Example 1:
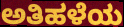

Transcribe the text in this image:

ಅತಿಹಳೆಯ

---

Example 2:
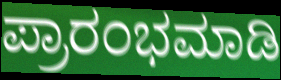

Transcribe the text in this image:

ಪ್ರಾರಂಭಮಾಡಿ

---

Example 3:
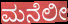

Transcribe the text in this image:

ಮನೆಲೀ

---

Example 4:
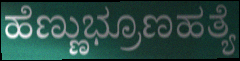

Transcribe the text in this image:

ಹೆಣ್ಣುಭ್ರೂಣಹತ್ಯೆ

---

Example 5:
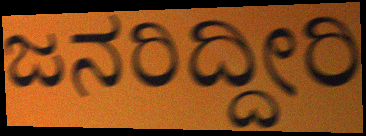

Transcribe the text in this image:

ಜನರಿದ್ದೀರಿ